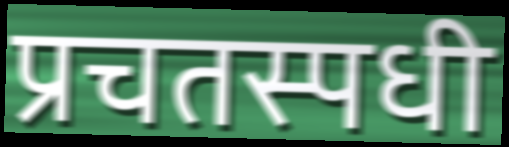
प्रचतस्पधी